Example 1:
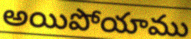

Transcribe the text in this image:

అయిపోయాము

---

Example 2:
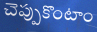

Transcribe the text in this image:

చెప్పుకొంటాం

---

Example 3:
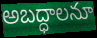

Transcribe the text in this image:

అబద్ధాలనూ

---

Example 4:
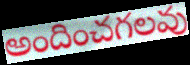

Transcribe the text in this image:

అందించగలవు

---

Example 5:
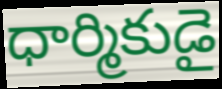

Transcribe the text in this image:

ధార్మికుడై